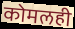
कोमलही